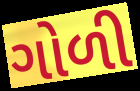
ગોળી